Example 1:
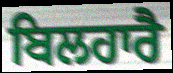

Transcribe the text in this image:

ਬਿਲਹਾਰੈ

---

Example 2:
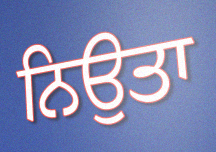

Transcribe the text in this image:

ਨਿਉਤਾ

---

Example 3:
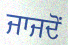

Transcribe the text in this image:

ਜਾਜਦੋਂ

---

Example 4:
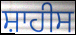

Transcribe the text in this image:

ਸ਼ਾਹੀਸ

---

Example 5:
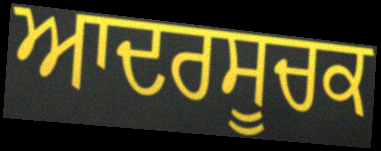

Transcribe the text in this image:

ਆਦਰਸੂਚਕ